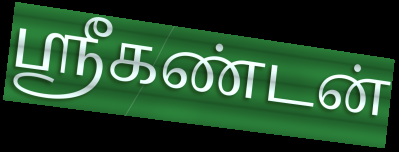
ஸ்ரீகண்டன்